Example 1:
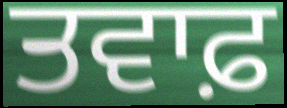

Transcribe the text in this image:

ਤਵਾਫ਼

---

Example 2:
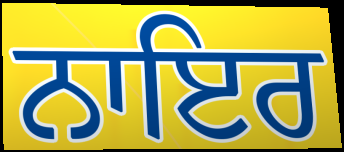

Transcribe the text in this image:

ਨਾਇਰ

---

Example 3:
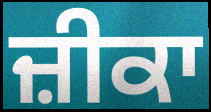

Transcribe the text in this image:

ਜ਼ੀਕਾ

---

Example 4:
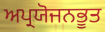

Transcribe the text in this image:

ਅਪ੍ਰਯੋਜਨਭੂਤ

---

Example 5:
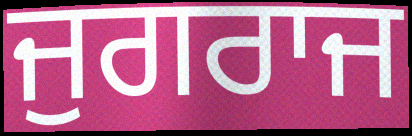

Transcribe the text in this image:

ਜੁਗਰਾਜ